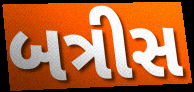
બત્રીસ